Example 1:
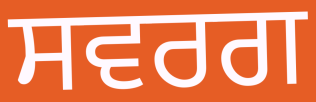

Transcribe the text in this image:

ਸਵਰਗ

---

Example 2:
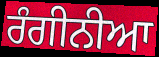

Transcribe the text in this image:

ਰੰਗੀਨੀਆ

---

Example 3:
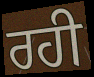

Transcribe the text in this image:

ਰਹੀ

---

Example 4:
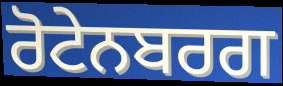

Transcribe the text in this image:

ਰੋਟੇਨਬਰਗ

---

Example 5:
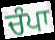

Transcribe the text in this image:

ਚੰਪਾ